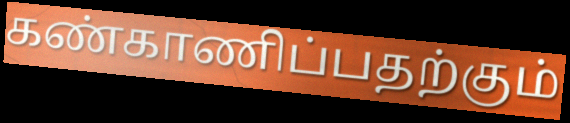
கண்காணிப்பதற்கும்